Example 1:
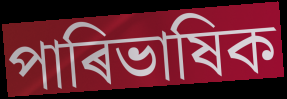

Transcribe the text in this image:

পাৰিভাষিক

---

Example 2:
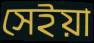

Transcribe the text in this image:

সেইয়া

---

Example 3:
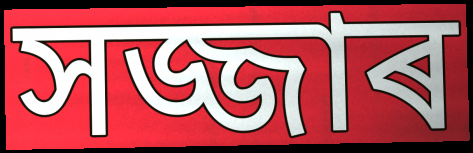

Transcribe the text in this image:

সজ্জাৰ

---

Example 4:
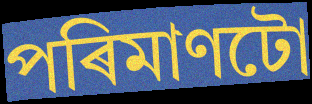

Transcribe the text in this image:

পৰিমাণটো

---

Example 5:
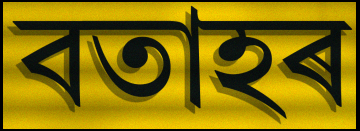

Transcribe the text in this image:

বতাহৰ